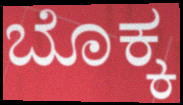
ಬೊಕ್ಕ